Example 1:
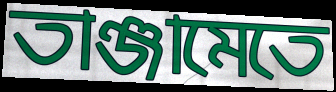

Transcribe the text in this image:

তাঞ্জামেতে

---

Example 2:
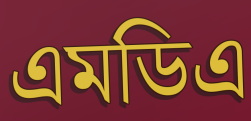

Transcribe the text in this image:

এমডিএ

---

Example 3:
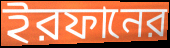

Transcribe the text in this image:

ইরফানের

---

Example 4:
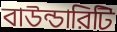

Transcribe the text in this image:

বাউন্ডারিটি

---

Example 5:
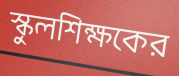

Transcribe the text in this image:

স্কুলশিক্ষকের